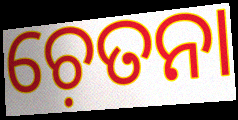
ଚ଼େତନା